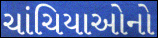
ચાંચિયાઓનો